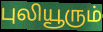
புலியூரும்